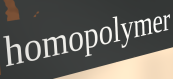
homopolymer